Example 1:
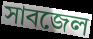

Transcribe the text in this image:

সাবজেল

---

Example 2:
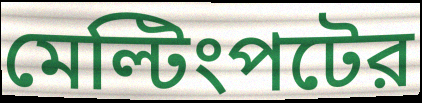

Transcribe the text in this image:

মেল্টিংপটের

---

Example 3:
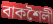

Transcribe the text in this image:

বাকশৈলী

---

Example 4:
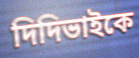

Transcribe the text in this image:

দিদিভাইকে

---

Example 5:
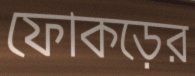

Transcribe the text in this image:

ফোকড়ের